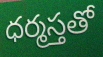
ధర్మస్తతో